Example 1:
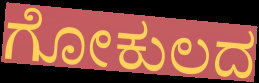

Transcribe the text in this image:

ಗೋಕುಲದ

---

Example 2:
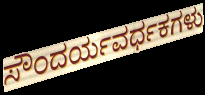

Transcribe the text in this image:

ಸೌಂದರ್ಯವರ್ಧಕಗಳು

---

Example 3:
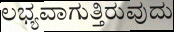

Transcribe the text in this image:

ಲಭ್ಯವಾಗುತ್ತಿರುವುದು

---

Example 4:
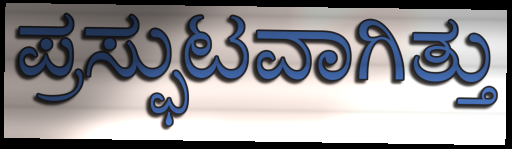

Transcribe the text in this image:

ಪ್ರಸ್ಫುಟವಾಗಿತ್ತು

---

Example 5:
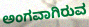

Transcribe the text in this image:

ಅಂಗವಾಗಿರುವ